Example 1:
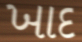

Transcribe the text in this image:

ખાદ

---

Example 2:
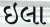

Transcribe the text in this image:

ઇલા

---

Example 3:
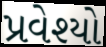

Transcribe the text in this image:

પ્રવેશ્યો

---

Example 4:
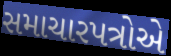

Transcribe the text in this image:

સમાચારપત્રોએ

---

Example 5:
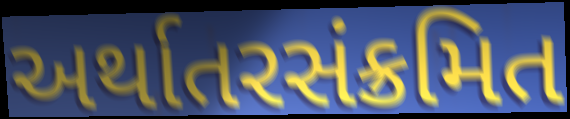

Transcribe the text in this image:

અર્થાતરસંક્રમિત